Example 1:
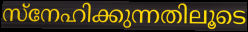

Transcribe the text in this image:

സ്നേഹിക്കുന്നതിലൂടെ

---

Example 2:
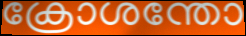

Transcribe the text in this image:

ക്രോശന്തോ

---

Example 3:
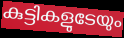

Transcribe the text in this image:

കുട്ടികളുടേയും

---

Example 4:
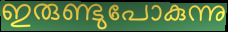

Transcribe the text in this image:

ഇരുണ്ടുപോകുന്നു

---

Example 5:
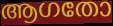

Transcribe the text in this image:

ആഗതോ